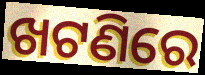
ଖଟଣିରେ